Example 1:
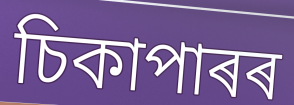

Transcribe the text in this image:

চিকাপাৰৰ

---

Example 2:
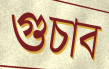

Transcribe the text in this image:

গুচাব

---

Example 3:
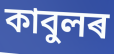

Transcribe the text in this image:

কাবুলৰ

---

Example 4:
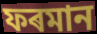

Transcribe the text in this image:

ফৰমান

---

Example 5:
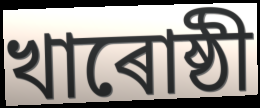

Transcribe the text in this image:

খাৰোষ্ঠী